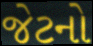
જેટનો